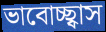
ভাবোচ্ছ্বাস